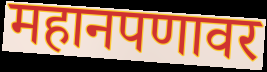
महानपणावर